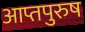
आप्तपुरुष